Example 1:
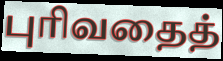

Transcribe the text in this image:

புரிவதைத்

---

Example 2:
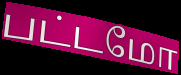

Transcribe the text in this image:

பட்டமோ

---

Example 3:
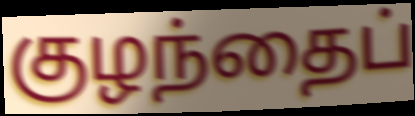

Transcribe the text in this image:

குழந்தைப்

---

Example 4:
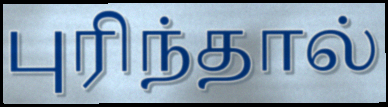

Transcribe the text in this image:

புரிந்தால்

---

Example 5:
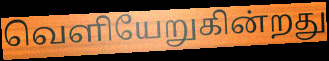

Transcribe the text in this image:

வெளியேறுகின்றது